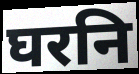
घरनि